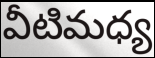
వీటిమధ్య